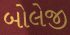
બોલેજી